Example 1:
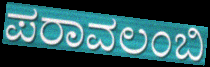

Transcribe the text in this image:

ಪರಾವಲಂಬಿ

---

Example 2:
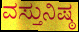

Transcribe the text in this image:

ವಸ್ತುನಿಷ್ಠ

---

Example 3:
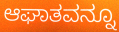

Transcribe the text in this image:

ಆಘಾತವನ್ನೂ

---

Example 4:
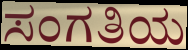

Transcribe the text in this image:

ಸಂಗತಿಯ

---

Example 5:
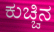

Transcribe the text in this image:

ಕುಚ್ಚಿನ